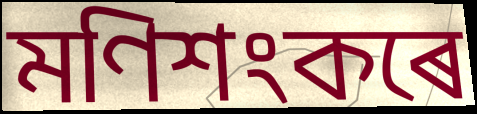
মণিশংকৰে